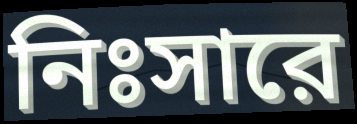
নিঃসারে